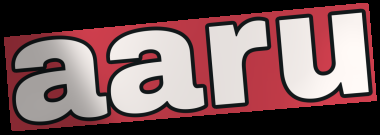
aaru